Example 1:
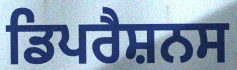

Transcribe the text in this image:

ਡਿਪਰੈਸ਼ਨਸ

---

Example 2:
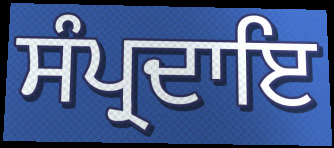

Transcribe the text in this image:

ਸੰਪ੍ਰਦਾਇ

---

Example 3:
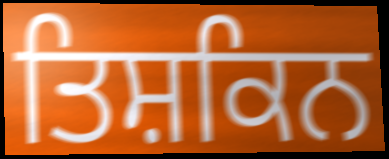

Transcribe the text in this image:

ਤਿਸ਼ਕਿਨ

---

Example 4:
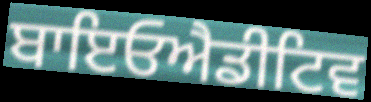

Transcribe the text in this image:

ਬਾਇਓਐਡੀਟਿਵ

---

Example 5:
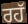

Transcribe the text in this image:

ਰਹੱ